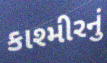
કાશ્મીરનું